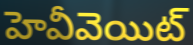
హెవీవెయిట్